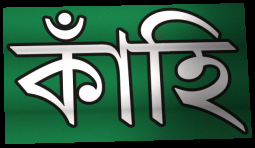
কাঁহি